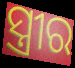
ସ୍ତ୍ରୀର